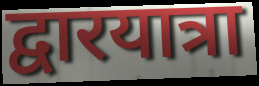
द्वारयात्रा